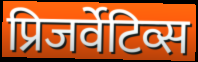
प्रिजर्वेटिव्स